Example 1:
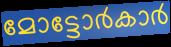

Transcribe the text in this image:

മോട്ടോർകാർ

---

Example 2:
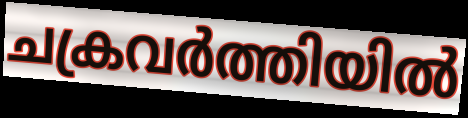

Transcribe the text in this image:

ചക്രവർത്തിയിൽ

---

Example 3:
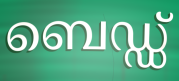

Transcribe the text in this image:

ബെഡ്ഡ്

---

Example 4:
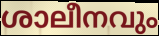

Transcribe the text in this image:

ശാലീനവും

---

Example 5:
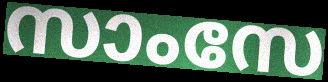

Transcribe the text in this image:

സാംസേ